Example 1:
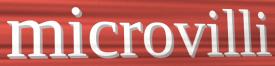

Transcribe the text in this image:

microvilli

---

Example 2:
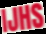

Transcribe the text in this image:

IJHS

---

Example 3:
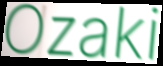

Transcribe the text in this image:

Ozaki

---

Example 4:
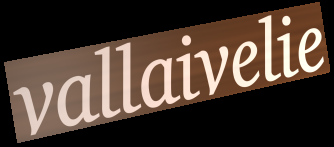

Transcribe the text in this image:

vallaivelie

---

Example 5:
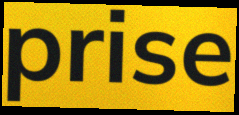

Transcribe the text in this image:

prise